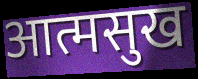
आत्मसुख